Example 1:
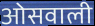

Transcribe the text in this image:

ओसवाली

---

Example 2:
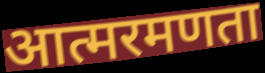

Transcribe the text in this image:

आत्मरमणता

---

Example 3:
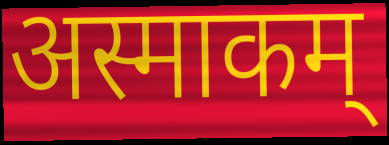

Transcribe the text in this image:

अस्माकम्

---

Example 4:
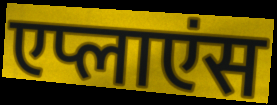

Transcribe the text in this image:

एप्लाएंस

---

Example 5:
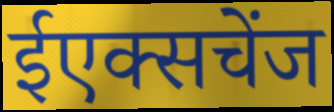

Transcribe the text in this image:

ईएक्सचेंज